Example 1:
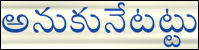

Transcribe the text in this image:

అనుకునేటట్టు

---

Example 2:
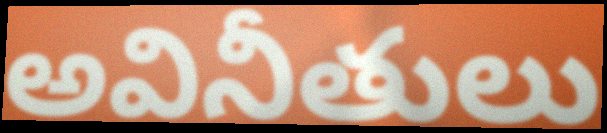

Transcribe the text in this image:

అవినీతులు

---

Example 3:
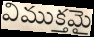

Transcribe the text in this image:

విముక్తమై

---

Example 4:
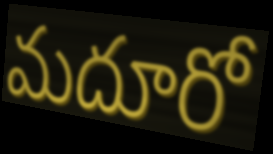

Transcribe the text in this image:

మదూరో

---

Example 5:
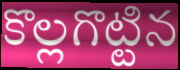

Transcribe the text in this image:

కొల్లగొట్టిన